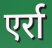
एर्रा